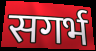
सगर्भ